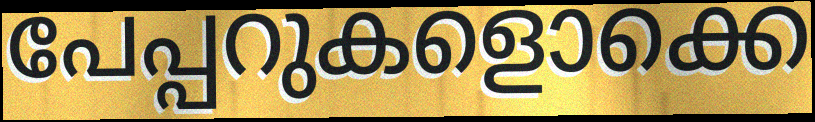
പേപ്പറുകളൊക്കെ